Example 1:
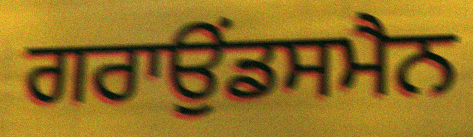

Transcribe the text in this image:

ਗਰਾਉਂਡਸਮੈਨ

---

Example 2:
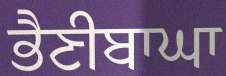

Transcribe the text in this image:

ਭੈਣੀਬਾਘਾ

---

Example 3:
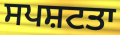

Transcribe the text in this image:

ਸਪਸ਼ਟਤਾ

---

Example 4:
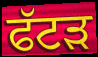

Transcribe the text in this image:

ਫੱਟੜ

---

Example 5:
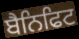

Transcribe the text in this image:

ਬੈਨਿਫਿਟ